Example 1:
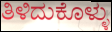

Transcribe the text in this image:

ತಿಳಿದುಕೊಳ್ಳು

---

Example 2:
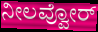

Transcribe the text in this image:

ನೀಲವ್ವೋರ್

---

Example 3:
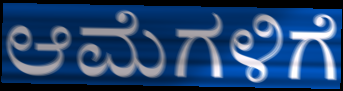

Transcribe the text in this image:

ಆಮೆಗಳಿಗೆ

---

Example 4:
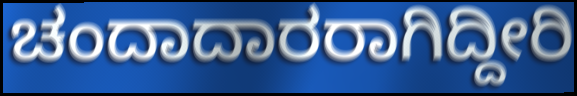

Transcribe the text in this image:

ಚಂದಾದಾರರಾಗಿದ್ದೀರಿ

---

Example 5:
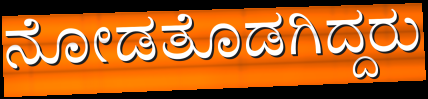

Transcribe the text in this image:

ನೋಡತೊಡಗಿದ್ದರು